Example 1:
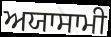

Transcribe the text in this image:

ਅਯਾਸਾਮੀ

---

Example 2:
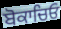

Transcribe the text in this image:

ਬੋਕਾਚਿਓ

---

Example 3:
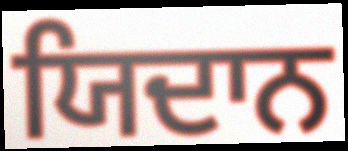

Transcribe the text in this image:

ਯਿਦਾਨ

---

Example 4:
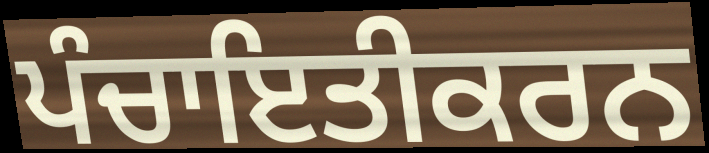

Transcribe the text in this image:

ਪੰਚਾਇਤੀਕਰਨ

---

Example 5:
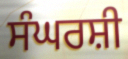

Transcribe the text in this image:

ਸੰਘਰਸ਼ੀ